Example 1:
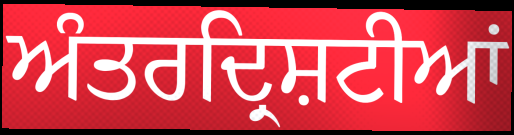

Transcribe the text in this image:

ਅੰਤਰਦ੍ਰਿਸ਼ਟੀਆਂ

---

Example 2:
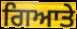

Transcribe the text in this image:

ਗਿਆਤੇ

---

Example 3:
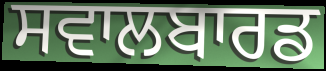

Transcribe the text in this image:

ਸਵਾਲਬਾਰਡ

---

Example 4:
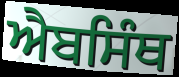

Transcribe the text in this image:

ਐਬਸਿੰਥ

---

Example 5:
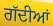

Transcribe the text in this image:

ਗੱਦੀਆਂ